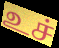
உச்